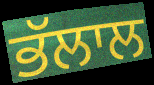
ਭੱਲਾਲ